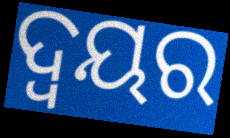
ଦ୍ବୟର